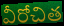
వీరోచిత